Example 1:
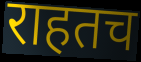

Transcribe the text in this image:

राहतच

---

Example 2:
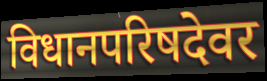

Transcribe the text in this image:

विधानपरिषदेवर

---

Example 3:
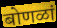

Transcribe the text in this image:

बोणळां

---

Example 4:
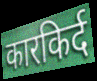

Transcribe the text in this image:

कारकिर्द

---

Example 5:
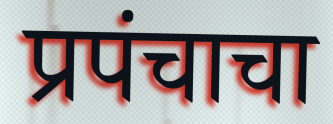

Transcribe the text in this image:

प्रपंचाचा